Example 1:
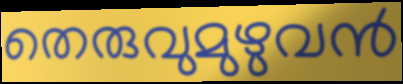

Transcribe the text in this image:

തെരുവുമുഴുവൻ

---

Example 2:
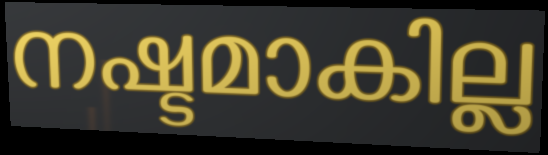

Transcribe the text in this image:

നഷ്ടമാകില്ല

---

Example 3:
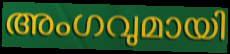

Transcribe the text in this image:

അംഗവുമായി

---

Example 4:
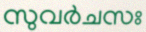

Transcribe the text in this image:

സുവർചസഃ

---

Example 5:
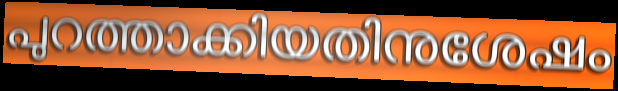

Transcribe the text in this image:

പുറത്താക്കിയതിനുശേഷം